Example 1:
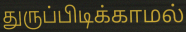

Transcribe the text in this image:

துருப்பிடிக்காமல்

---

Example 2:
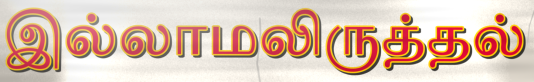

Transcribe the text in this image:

இல்லாமலிருத்தல்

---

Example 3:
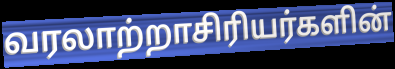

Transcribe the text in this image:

வரலாற்றாசிரியர்களின்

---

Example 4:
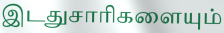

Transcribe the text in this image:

இடதுசாரிகளையும்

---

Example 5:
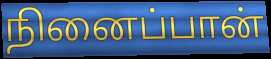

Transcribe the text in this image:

நினைப்பான்